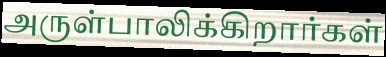
அருள்பாலிக்கிறார்கள்